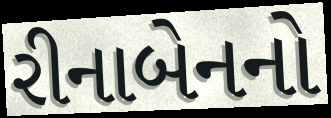
રીનાબેનનો